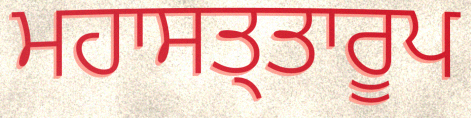
ਮਹਾਸਤ੍ਤਾਰੂਪ